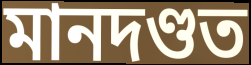
মানদণ্ডত